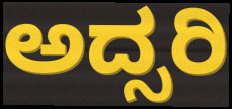
ಅದ್ಸರಿ